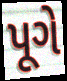
પૂગે